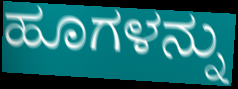
ಹೂಗಳನ್ನು